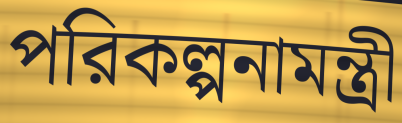
পরিকল্পনামন্ত্রী